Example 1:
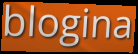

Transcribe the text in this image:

blogina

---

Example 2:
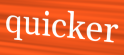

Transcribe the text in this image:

quicker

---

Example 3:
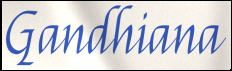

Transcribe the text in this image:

Gandhiana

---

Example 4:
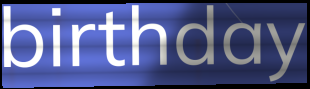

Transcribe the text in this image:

birthday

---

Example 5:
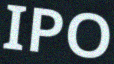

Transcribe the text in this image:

IPO